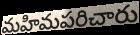
మహిమపరిచారు